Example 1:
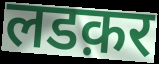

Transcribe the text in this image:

लडक़र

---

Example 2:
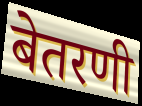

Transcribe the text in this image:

बेतरणी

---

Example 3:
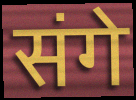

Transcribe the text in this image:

संगे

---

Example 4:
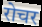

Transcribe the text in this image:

रोचर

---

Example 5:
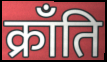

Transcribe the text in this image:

क्राँति